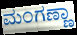
ಮಂಗಣ್ಣಾ